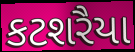
કટશરૈયા